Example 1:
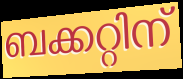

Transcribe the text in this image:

ബക്കറ്റിന്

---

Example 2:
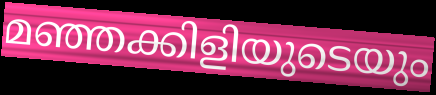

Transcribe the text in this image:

മഞ്ഞക്കിളിയുടെയും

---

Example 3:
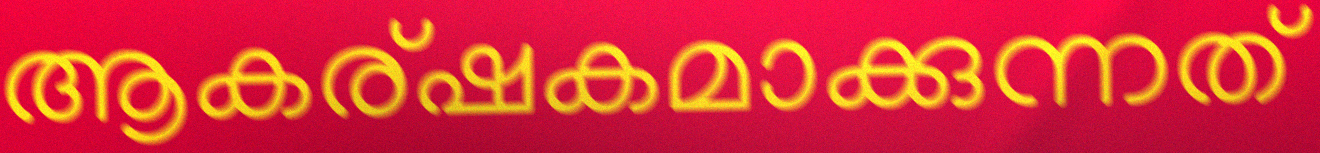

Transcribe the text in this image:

ആകര്ഷകമാക്കുന്നത്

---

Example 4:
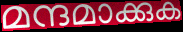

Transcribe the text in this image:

മന്ദമാക്കുക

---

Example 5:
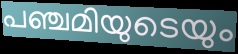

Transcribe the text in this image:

പഞ്ചമിയുടെയും